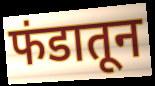
फंडातून